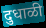
दुधाळी